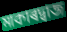
মাকাৰদ্বাজ